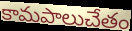
కామపాలుచేతం